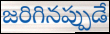
జరిగినప్పుడే